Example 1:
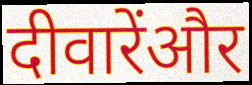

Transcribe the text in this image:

दीवारेंऔर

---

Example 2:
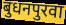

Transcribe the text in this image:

बुधनपुरवा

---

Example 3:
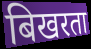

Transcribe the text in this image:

बिखरता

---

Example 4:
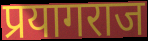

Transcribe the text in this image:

प्रयागराज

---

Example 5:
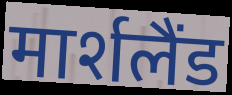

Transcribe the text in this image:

मार्शलैंड